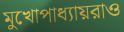
মুখোপাধ্যায়রাও